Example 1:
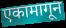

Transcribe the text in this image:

एकामागून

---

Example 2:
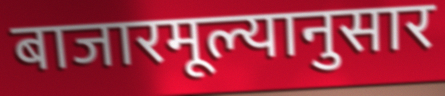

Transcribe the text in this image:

बाजारमूल्यानुसार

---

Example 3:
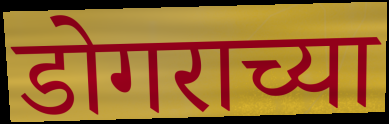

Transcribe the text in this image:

डोगराच्या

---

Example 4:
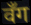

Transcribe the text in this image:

वँग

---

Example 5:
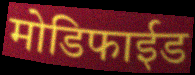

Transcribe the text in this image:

मोडिफाईड